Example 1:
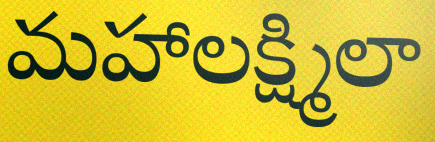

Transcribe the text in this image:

మహాలక్ష్మిలా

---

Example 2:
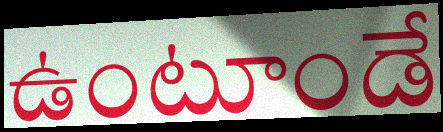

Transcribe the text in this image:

ఉంటూండే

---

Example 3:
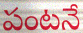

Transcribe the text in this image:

పంటనే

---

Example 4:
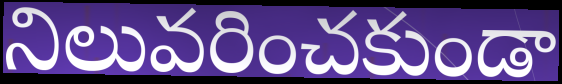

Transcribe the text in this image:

నిలువరించకుండా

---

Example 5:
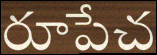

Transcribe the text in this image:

రూపేచ